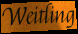
Weitling